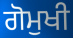
ਗੋਮੁਖੀ